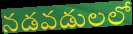
నడవడులలో